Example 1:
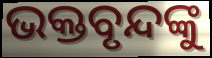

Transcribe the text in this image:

ଭକ୍ତବୃନ୍ଦଙ୍କୁ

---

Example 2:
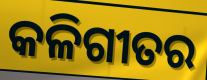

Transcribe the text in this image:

କଳିଗୀତର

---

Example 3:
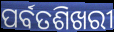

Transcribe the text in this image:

ପର୍ବତଶିଖରୀ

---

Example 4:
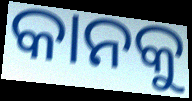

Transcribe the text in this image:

କାନକୁ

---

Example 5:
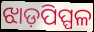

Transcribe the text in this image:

ଝାଡ଼ପିପ୍ପଳ